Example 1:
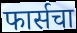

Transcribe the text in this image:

फार्सचा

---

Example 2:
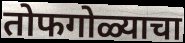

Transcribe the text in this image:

तोफगोळ्याचा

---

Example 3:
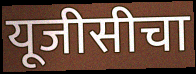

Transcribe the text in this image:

यूजीसीचा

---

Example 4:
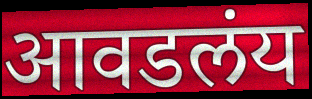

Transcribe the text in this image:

आवडलंय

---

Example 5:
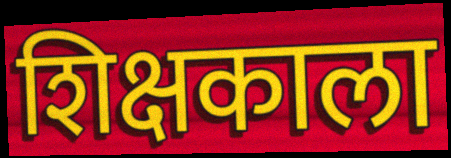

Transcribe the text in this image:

शिक्षकाला